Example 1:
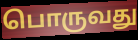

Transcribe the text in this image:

பொருவது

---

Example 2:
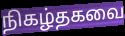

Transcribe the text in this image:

நிகழ்தகவை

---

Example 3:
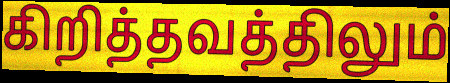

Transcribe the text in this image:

கிறித்தவத்திலும்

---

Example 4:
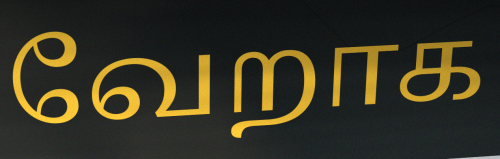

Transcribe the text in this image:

வேறாக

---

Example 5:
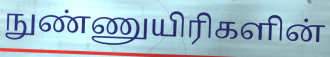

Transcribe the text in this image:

நுண்ணுயிரிகளின்